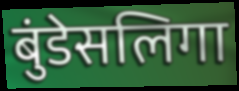
बुंडेसलिगा